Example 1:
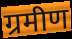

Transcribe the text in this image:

ग्रमीण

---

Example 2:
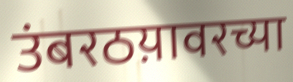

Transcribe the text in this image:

उंबरठय़ावरच्या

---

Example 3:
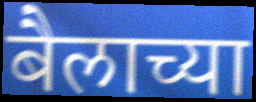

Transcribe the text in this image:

बैलाच्या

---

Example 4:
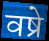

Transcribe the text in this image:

वष्रे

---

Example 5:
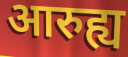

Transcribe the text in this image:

आरुह्य